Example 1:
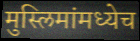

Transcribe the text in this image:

मुस्लिमांमध्येच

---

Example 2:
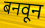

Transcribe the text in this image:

बनवून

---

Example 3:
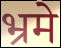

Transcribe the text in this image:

भ्रमे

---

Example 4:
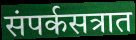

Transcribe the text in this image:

संपर्कसत्रात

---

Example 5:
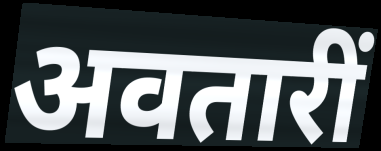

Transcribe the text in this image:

अवतारीं